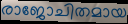
രാജോചിതമായ